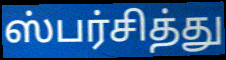
ஸ்பர்சித்து